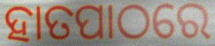
ହାତପାଠରେ